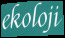
ekoloji